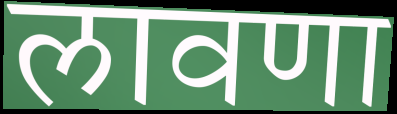
लावणा